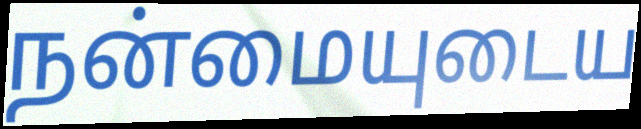
நன்மையுடைய